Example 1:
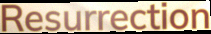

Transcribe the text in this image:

Resurrection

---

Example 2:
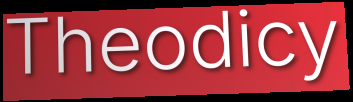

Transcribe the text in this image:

Theodicy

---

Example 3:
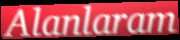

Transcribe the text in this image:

Alanlaram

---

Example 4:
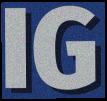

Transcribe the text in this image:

IG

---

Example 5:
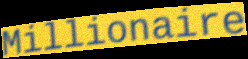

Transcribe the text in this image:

Millionaire